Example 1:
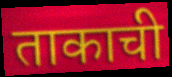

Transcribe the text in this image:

ताकाची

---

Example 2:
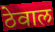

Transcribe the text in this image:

ठेवाल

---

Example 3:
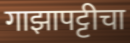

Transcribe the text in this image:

गाझापट्टीचा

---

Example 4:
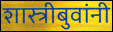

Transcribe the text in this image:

शास्त्रीबुवांनी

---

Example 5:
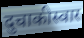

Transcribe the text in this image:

दुचाकीस्वार